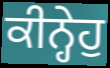
ਕੀਨ੍ਹੇਹੁ